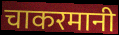
चाकरमानी